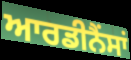
ਆਰਡੀਨੈਂਸਾਂ